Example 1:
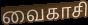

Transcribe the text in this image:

வைகாசி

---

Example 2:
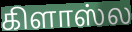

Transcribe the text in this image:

கிளாஸ்ல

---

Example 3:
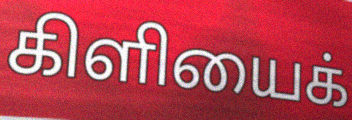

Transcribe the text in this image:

கிளியைக்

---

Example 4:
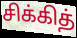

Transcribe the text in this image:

சிக்கித்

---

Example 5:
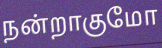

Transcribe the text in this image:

நன்றாகுமோ